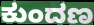
ಕುಂದಣ